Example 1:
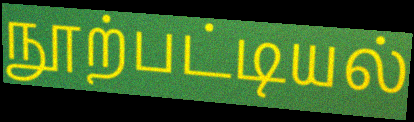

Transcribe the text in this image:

நூற்பட்டியல்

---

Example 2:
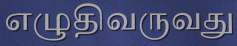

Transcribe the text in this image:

எழுதிவருவது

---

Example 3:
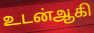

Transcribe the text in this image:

உடன்ஆகி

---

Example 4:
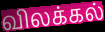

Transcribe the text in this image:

விலக்கல்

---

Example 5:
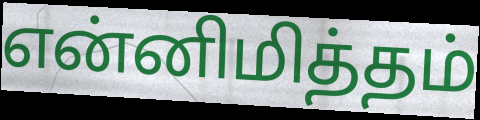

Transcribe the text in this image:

என்னிமித்தம்